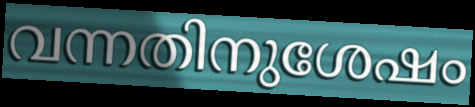
വന്നതിനുശേഷം